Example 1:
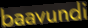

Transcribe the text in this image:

baavundi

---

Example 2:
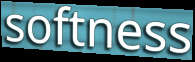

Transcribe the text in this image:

softness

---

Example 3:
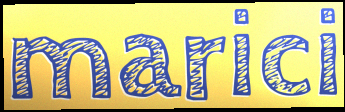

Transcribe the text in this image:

marici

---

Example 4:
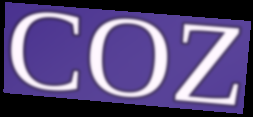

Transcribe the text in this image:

COZ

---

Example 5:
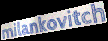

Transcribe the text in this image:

milankovitch